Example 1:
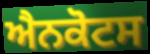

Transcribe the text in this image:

ਐਨਕੋਟਸ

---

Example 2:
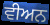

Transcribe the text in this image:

ਵੀਅਨ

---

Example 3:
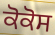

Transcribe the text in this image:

ਕੋਕੋਸ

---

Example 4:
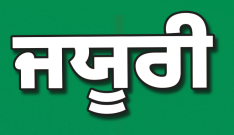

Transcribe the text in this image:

ਜਯੂਰੀ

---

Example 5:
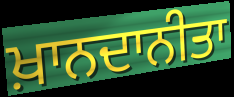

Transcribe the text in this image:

ਖ਼ਾਨਦਾਨੀਤਾ